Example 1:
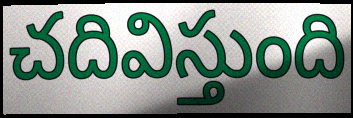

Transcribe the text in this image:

చదివిస్తుంది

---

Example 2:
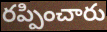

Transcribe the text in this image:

రప్పించారు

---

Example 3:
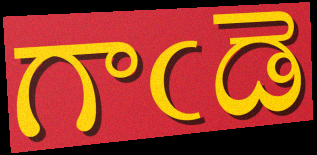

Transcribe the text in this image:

గాఁడె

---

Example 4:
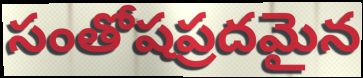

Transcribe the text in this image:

సంతోషప్రదమైన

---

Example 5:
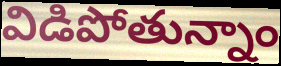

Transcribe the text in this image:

విడిపోతున్నాం